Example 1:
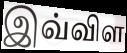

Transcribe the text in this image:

இவ்விள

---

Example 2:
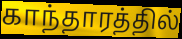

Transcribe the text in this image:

காந்தாரத்தில்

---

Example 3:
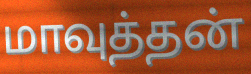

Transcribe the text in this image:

மாவுத்தன்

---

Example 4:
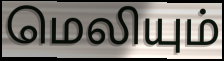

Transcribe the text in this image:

மெலியும்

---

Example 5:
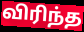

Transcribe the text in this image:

விரிந்த